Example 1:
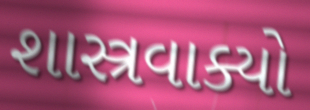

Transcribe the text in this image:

શાસ્ત્રવાક્યો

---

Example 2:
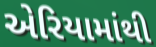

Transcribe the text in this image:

એરિયામાંથી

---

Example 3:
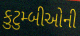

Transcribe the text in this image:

કુટુમ્બીઓની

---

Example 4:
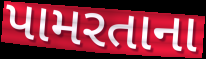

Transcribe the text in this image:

પામરતાના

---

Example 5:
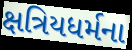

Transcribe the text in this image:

ક્ષત્રિયધર્મના